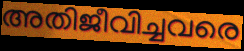
അതിജീവിച്ചവരെ